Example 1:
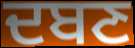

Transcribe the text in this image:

ਦਬਣ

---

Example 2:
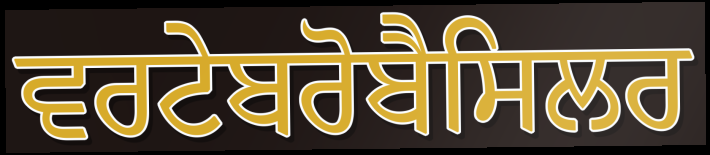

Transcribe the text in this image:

ਵਰਟੇਬਰੋਬੈਸਿਲਰ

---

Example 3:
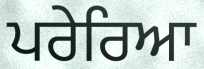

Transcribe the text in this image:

ਪਰੇਰਿਆ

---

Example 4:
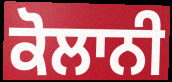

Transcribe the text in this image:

ਕੋਲਾਨੀ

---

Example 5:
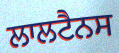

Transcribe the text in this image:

ਲਾਲਟੈਨਸ